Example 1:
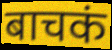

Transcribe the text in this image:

बाचकं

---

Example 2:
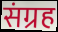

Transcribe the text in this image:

संग्रह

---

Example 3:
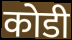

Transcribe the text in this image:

कोडी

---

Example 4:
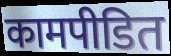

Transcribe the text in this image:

कामपीडित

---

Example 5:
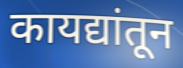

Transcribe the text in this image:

कायद्यांतून